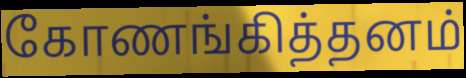
கோணங்கித்தனம்